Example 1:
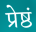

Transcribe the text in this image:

प्रेष्ठं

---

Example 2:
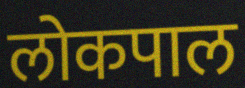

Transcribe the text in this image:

लोकपाल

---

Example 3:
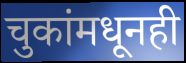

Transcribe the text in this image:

चुकांमधूनही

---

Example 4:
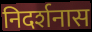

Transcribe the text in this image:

निदर्शनास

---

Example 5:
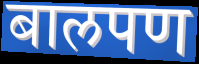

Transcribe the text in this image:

बालपण